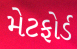
મેટફોર્ડ